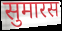
सुमारस